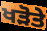
ਖੜੋਤੇ